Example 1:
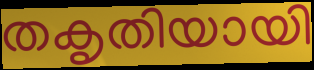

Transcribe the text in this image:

തകൃതിയായി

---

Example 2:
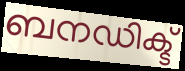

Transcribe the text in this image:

ബനഡിക്ട്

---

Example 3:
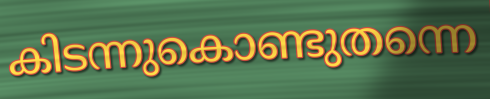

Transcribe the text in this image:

കിടന്നുകൊണ്ടുതന്നെ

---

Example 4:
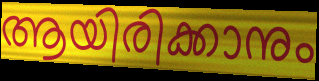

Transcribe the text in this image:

ആയിരിക്കാനും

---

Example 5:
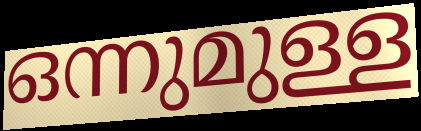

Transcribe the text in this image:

ഒന്നുമുള്ള